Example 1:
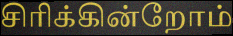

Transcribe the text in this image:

சிரிக்கின்றோம்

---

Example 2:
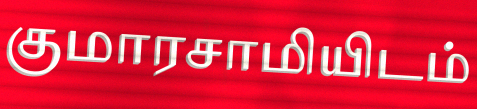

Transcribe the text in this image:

குமாரசாமியிடம்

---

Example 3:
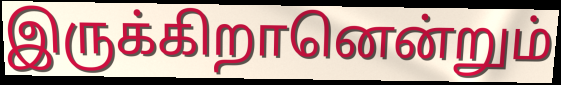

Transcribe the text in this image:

இருக்கிறானென்றும்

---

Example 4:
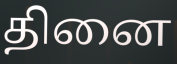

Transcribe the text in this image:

தினை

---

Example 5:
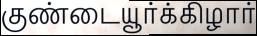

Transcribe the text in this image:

குண்டையூர்க்கிழார்